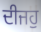
ਦੀਜਹੁ